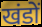
खंडों